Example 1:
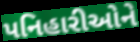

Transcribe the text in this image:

પનિહારીઓને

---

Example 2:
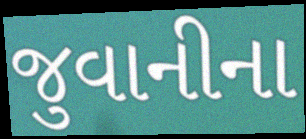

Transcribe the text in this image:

જુવાનીના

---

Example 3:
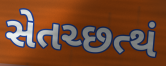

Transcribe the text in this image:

સેતચ્છત્થં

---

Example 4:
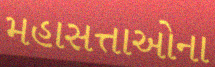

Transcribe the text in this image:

મહાસત્તાઓના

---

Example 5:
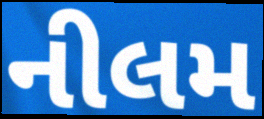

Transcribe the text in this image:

નીલમ